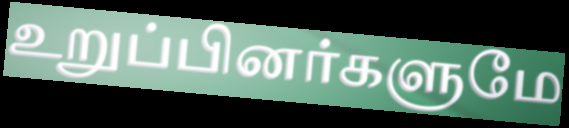
உறுப்பினர்களுமே